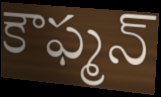
కౌఫ్మన్